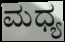
ಮಧ್ಯ